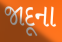
જાદૂના